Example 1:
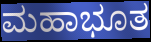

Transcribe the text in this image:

ಮಹಾಭೂತ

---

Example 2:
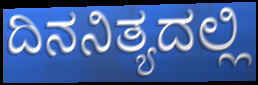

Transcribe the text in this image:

ದಿನನಿತ್ಯದಲ್ಲಿ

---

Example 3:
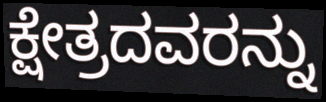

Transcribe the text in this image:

ಕ್ಷೇತ್ರದವರನ್ನು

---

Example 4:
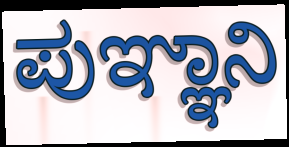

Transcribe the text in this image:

ಪುಞ್ಞಾನಿ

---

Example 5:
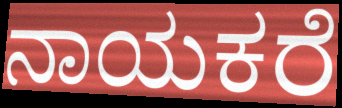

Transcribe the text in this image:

ನಾಯಕರೆ